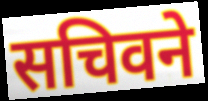
सचिवने